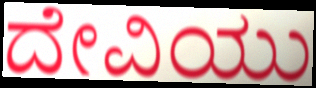
ದೇವಿಯು